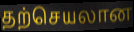
தற்செயலான